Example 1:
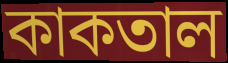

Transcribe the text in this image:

কাকতাল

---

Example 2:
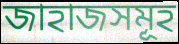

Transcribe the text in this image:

জাহাজসমূহ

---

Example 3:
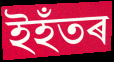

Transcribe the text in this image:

ইহঁতৰ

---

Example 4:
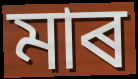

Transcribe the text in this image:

মাৰ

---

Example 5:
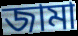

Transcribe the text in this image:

জামা